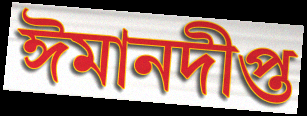
ঈমানদীপ্ত